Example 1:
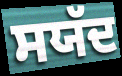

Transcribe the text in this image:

ਸਯੱਦ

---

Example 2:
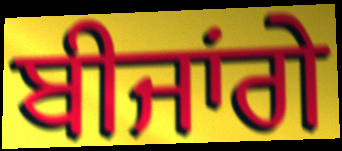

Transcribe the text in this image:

ਬੀਜਾਂਗੇ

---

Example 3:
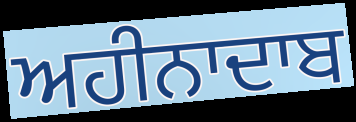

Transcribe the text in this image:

ਅਹੀਨਾਦਾਬ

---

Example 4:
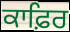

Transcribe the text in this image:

ਕਾਫ਼ਿਰ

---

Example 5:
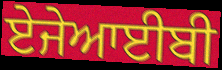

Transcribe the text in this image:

ਏਜੇਆਈਬੀ